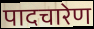
पादचारेण